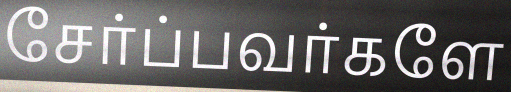
சேர்ப்பவர்களே